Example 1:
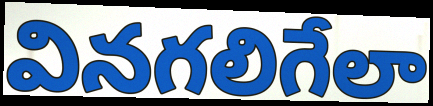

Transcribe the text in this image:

వినగలిగేలా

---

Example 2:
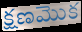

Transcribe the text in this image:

క్షణమొక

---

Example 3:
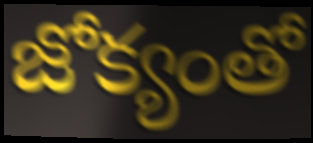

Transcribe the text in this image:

జోక్యంతో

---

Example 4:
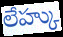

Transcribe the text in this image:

లేహ్కు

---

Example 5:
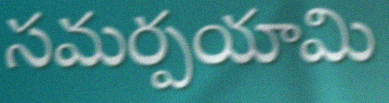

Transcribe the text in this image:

సమర్పయామి